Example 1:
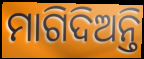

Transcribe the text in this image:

ମାଗିଦିଅନ୍ତି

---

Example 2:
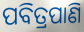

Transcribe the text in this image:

ପବିତ୍ରପାଣି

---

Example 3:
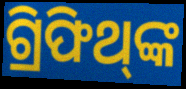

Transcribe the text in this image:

ଗ୍ରିଫିଥ୍‌ଙ୍କ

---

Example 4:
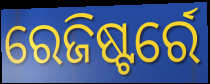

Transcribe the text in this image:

ରେଜିଷ୍ଟର୍ରେ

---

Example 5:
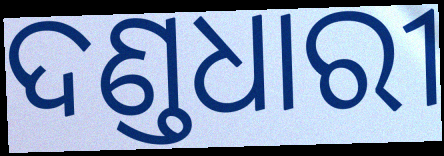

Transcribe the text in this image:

ଦଣ୍ଡଧାରୀ